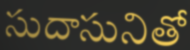
సుదాసునితో